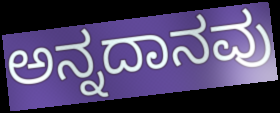
ಅನ್ನದಾನವು